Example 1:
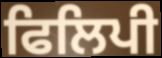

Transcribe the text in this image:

ਫਿਲਿਪੀ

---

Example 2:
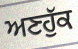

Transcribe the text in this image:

ਅਣਹੁੱਕ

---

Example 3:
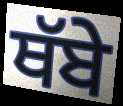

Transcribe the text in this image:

ਥੱਬੇ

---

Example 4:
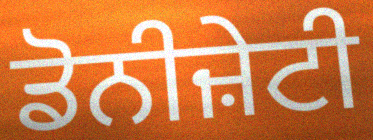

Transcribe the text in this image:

ਡੋਨੀਜ਼ੇਟੀ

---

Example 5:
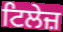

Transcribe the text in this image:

ਟਿਲੇਜ਼